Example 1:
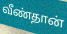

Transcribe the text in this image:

வீண்தான்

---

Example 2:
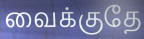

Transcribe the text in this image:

வைக்குதே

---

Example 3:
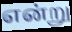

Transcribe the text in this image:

என்று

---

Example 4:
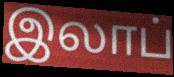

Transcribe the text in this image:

இலாப்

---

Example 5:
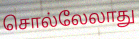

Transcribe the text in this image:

சொல்லேலாது